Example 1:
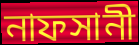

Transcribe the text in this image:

নাফসানী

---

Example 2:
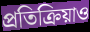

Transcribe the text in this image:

প্রতিক্রিয়াও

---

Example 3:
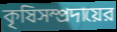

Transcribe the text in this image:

কৃষিসম্প্রদায়ের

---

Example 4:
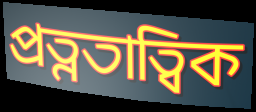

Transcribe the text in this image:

প্রত্নতাত্বিক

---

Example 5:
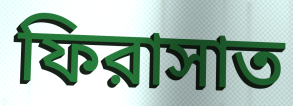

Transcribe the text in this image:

ফিরাসাত